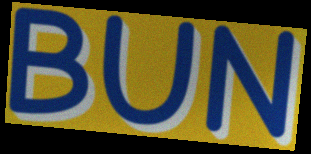
BUN